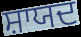
ਸ਼ਾਯਦ